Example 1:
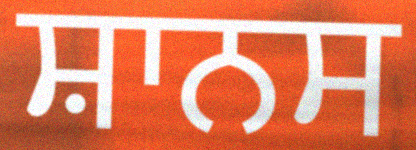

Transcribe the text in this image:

ਸ਼ਾਨਸ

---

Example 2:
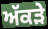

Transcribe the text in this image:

ਅੱਕੜੇ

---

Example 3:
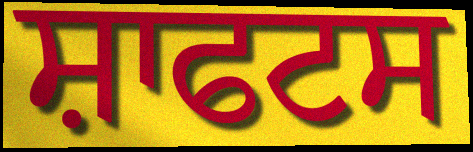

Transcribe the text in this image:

ਸ਼ਾਫਟਸ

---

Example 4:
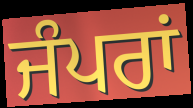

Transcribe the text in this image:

ਜੰਪਰਾਂ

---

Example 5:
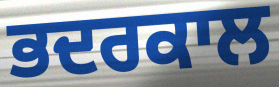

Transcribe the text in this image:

ਭਦਰਕਾਲ